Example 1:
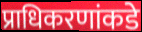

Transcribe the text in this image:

प्राधिकरणांकडे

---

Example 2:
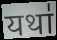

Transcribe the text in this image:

यथा॑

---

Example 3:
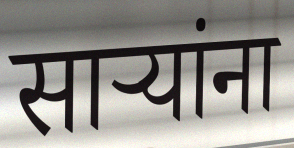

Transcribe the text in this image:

सार्‍यांना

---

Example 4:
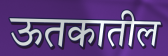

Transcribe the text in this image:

ऊतकातील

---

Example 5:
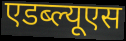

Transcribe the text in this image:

एडब्ल्यूएस